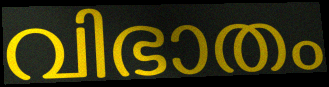
വിഭാതം